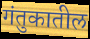
गंतुकातील